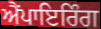
ਐਂਪਾਇਰਿੰਗ